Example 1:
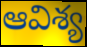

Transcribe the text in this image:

ఆవిశ్య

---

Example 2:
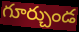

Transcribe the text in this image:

గూర్చుండ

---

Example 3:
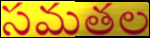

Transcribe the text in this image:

సమతల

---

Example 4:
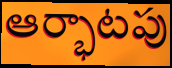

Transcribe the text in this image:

ఆర్భాటపు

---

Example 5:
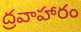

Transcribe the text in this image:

ద్రవాహారం